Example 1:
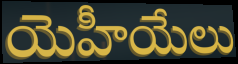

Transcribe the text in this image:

యెహీయేలు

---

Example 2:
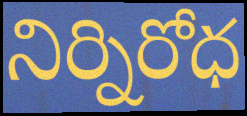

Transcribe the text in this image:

నిర్నిరోధ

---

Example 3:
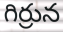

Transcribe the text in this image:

గిర్రున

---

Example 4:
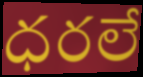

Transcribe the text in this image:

ధరలే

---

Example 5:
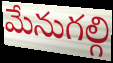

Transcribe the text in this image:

మేనుగల్గి